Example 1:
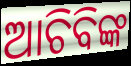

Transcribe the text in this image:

ଆଚିବିଙ୍କ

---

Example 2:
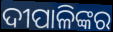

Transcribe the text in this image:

ଦୀପାଳିଙ୍କର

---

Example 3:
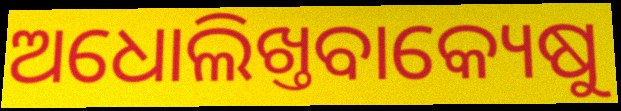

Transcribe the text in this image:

ଅଧୋଲିଖ୍ତବାକ୍ୟେଷୁ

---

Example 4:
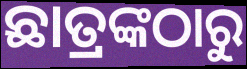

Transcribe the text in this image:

ଛାତ୍ରଙ୍କଠାରୁ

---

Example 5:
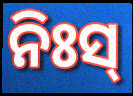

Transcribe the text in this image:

ନିଃସ୍